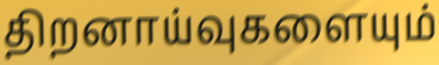
திறனாய்வுகளையும்